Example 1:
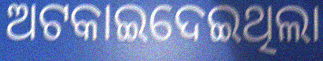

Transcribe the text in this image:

ଅଟକାଇଦେଇଥିଲା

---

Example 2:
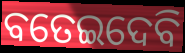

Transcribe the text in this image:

ବତେଇଦେବି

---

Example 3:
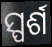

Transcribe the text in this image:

ସ୍ପର୍ଶ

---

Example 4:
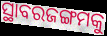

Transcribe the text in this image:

ସ୍ଥାବରଜଙ୍ଗମକୁ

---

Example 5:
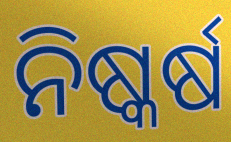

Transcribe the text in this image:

ନିଷ୍କର୍ଷ